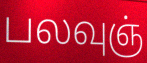
பலவுஞ்